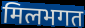
मिलभगत